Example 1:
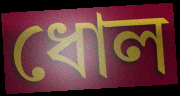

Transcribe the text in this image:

ধোল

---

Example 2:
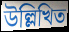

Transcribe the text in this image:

উল্লিখিত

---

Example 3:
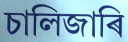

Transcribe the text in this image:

চালিজাৰি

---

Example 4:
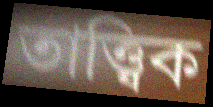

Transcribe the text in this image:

তাত্ত্বিক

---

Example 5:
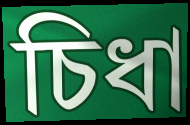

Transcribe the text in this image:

চিধা